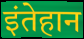
इंतेहान